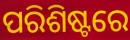
ପରିଶିଷ୍ଟରେ